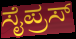
ಸೈಪ್ರಸ್